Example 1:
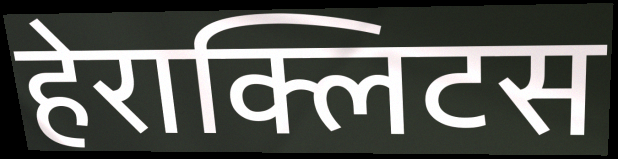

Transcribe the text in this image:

हेराक्लिटस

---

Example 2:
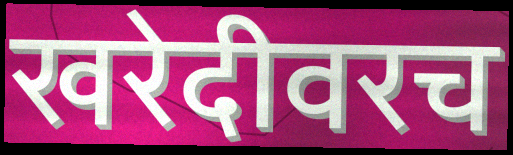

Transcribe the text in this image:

खरेदीवरच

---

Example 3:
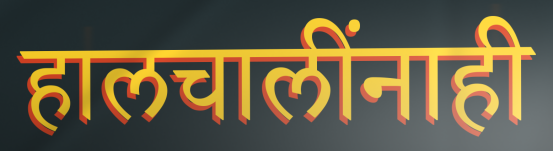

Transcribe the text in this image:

हालचालींनाही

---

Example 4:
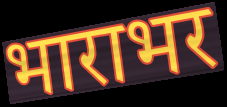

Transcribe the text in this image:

भाराभर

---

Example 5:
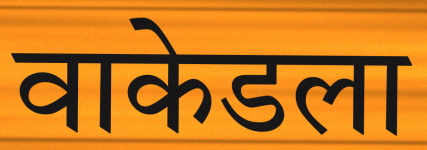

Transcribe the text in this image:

वाकेडला